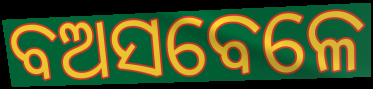
ବଅସବେଳେ